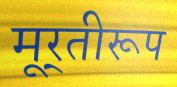
मूर्तीरूप